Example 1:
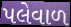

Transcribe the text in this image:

પલેવાળ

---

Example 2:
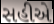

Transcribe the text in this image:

સહીએ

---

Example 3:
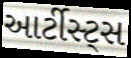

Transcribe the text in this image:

આર્ટીસ્ટ્સ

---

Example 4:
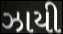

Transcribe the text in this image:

ઝાયી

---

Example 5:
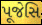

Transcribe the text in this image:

પૂજેસિ